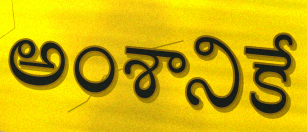
అంశానికే